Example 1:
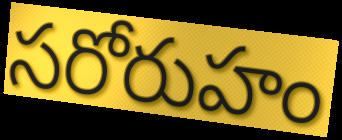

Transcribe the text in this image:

సరోరుహం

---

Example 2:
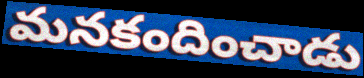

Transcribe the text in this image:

మనకందించాడు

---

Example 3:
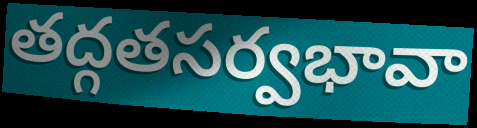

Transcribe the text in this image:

తద్గతసర్వభావా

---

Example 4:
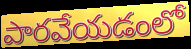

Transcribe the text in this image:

పారవేయడంలో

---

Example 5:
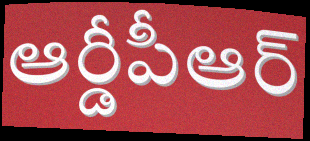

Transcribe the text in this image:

ఆర్డీపీఆర్